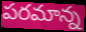
పరమాన్న